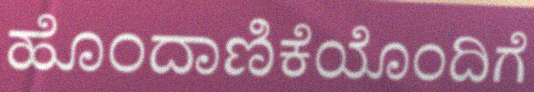
ಹೊಂದಾಣಿಕೆಯೊಂದಿಗೆ